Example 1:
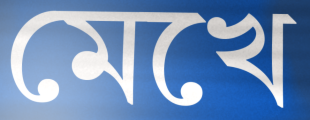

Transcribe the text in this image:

মেখে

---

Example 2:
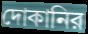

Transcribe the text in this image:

দোকানির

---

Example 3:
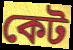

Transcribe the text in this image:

কেট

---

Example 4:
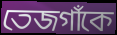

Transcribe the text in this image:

তেজগাঁকে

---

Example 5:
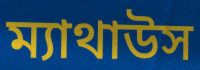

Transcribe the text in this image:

ম্যাথাউস